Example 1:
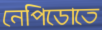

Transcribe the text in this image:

নেপিডোতে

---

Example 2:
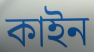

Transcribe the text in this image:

কাইন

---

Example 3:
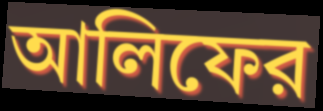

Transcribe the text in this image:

আলিফের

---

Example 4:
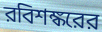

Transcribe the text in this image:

রবিশঙ্করের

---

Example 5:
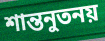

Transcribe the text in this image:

শান্তনুতনয়